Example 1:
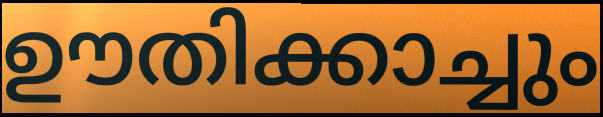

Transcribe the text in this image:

ഊതിക്കാച്ചും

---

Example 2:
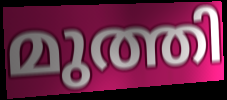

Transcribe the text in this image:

മുത്തി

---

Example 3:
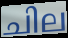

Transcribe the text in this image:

ചില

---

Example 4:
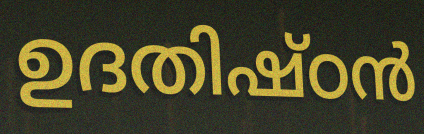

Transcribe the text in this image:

ഉദതിഷ്ഠൻ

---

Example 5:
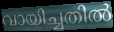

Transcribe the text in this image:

വായിച്ചതിൽ